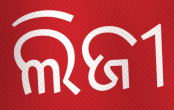
ଲିଜୀ